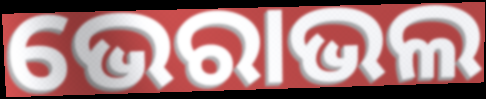
ଭେରାଭଲ